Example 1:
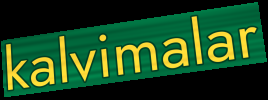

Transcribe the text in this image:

kalvimalar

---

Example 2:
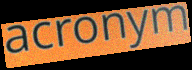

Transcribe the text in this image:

acronym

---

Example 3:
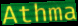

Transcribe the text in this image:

Athma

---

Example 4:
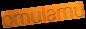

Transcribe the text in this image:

omulamu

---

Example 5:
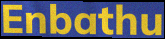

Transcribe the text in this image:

Enbathu